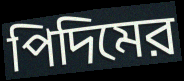
পিদিমের